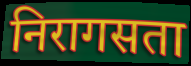
निरागसता